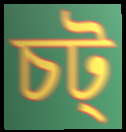
চট্